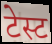
टेस्ट